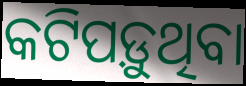
କଟିପଡ଼ୁଥିବା